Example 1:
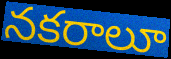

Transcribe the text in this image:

నకరాలూ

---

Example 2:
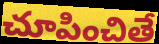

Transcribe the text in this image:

చూపించితే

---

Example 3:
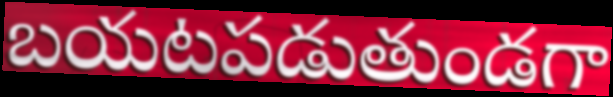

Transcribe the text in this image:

బయటపడుతుండగా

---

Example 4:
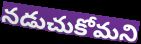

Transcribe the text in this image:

నడుచుకోమని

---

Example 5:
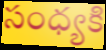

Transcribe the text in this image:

సంధ్యకి